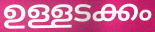
ഉള്ളടക്കം